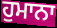
ਹੁਮਾਨਾ